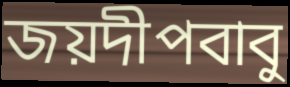
জয়দীপবাবু